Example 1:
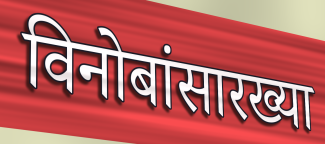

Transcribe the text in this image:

विनोबांसारख्या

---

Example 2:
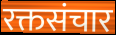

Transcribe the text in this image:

रक्तसंचार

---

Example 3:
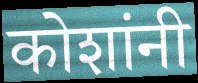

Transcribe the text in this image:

कोशांनी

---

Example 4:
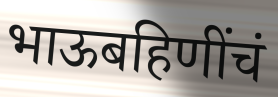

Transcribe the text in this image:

भाऊबहिणींचं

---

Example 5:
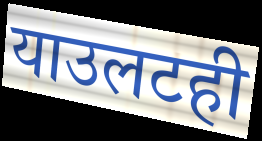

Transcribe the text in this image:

याउलटही